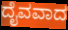
ದೈವವಾದ